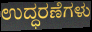
ಉದ್ಧರಣೆಗಳು